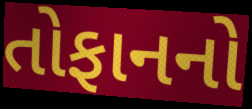
તોફાનનો